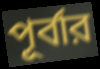
পূর্বার